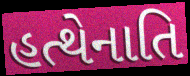
હત્થેનાતિ